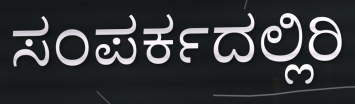
ಸಂಪರ್ಕದಲ್ಲಿರಿ